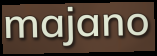
majano